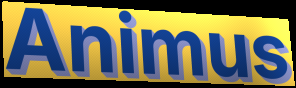
Animus